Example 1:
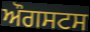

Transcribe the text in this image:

ਔਗਸਟਸ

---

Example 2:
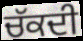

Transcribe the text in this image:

ਚੱਕਦੀ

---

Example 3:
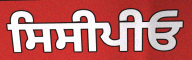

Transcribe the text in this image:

ਸਿਸੀਪੀਓ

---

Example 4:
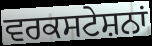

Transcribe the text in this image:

ਵਰਕਸਟੇਸ਼ਨਾਂ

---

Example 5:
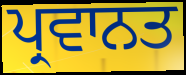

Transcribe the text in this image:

ਪ੍ਰਵਾਨਤ